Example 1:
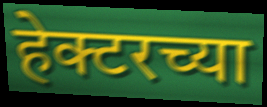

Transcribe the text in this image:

हेक्टरच्या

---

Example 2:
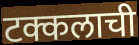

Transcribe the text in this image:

टक्कलाची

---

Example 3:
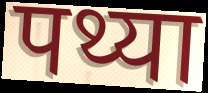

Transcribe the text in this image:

पथ्या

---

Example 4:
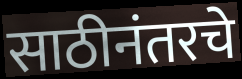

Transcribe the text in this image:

साठीनंतरचे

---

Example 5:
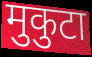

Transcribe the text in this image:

मुकुटा